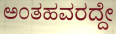
ಅಂತಹವರದ್ದೇ